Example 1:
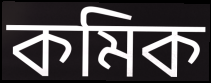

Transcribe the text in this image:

কমিক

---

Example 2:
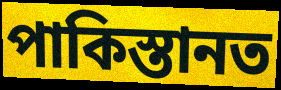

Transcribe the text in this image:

পাকিস্তানত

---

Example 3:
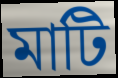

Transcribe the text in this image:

মাটি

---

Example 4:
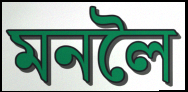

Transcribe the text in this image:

মনলৈ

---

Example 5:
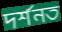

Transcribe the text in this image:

দৰ্শনত